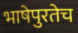
भाषेपुरतेच